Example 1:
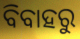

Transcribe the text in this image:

ବିବାହରୁ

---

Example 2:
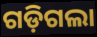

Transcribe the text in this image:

ଗଡ଼ିଗଲା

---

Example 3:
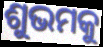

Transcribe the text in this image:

ଶୁଭମକୁ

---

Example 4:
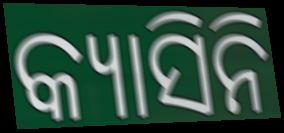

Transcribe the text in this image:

କ୍ୟାସିନି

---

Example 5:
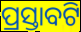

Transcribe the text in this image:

ପ୍ରସ୍ତାବଟି